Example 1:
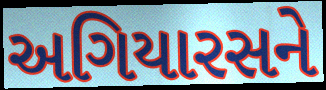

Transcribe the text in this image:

અગિયારસને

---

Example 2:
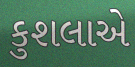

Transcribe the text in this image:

કુશલાએ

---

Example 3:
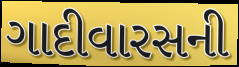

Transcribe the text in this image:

ગાદીવારસની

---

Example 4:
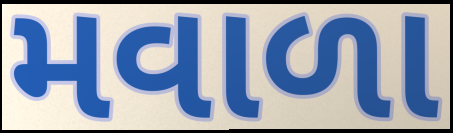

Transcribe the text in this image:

મવાળા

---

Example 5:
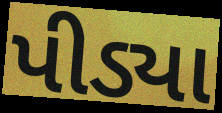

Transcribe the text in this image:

પીડ્યા